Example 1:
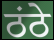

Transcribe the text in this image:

ठंठे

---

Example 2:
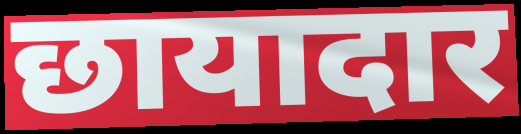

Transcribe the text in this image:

छायादार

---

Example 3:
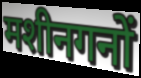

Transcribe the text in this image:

मशीनगनों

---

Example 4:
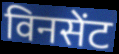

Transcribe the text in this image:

विनसेंट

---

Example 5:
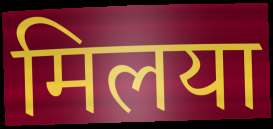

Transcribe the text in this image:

मिलया